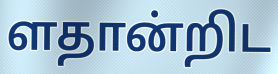
ளதான்றிட